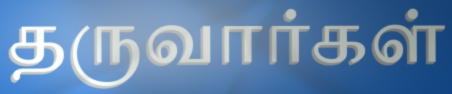
தருவார்கள்